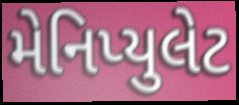
મેનિપ્યુલેટ